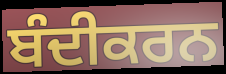
ਬੰਦੀਕਰਨ